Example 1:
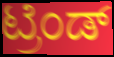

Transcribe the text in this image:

ಟ್ರೆಂಡ್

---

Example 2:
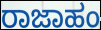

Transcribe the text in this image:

ರಾಜಾಹಂ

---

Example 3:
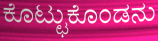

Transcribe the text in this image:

ಕೊಟ್ಟುಕೊಂಡನು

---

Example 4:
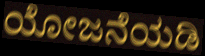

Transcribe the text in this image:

ಯೋಜನೆಯಡಿ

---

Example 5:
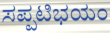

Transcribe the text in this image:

ಸಪ್ಪಟಿಭಯಂ